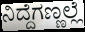
ನಿದ್ದೆಗಣ್ಣಲ್ಲೆ